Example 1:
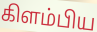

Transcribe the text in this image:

கிளம்பிய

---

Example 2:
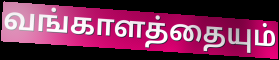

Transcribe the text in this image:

வங்காளத்தையும்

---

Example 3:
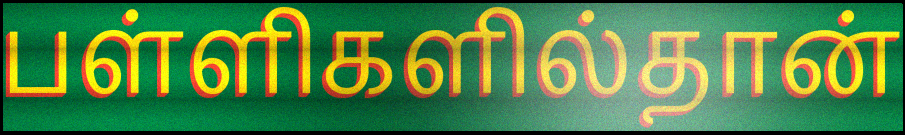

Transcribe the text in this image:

பள்ளிகளில்தான்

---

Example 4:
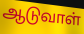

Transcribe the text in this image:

ஆடுவாள்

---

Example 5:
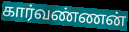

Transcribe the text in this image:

கார்வண்ணன்